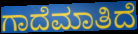
ಗಾದೆಮಾತಿದೆ